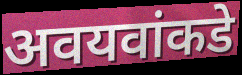
अवयवांकडे